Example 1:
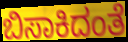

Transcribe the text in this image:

ಬಿಸಾಕಿದಂತೆ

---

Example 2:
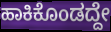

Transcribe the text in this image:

ಹಾಕಿಕೊಂಡದ್ದೇ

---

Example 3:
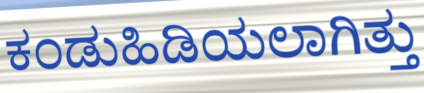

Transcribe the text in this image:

ಕಂಡುಹಿಡಿಯಲಾಗಿತ್ತು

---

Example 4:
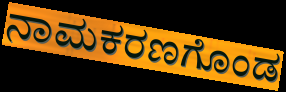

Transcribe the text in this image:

ನಾಮಕರಣಗೊಂಡ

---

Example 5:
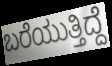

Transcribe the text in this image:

ಬರೆಯುತ್ತಿದ್ದೆ